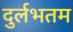
दुर्लभतम